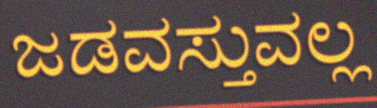
ಜಡವಸ್ತುವಲ್ಲ